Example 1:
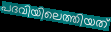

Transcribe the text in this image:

പദവിയിലെത്തിയത്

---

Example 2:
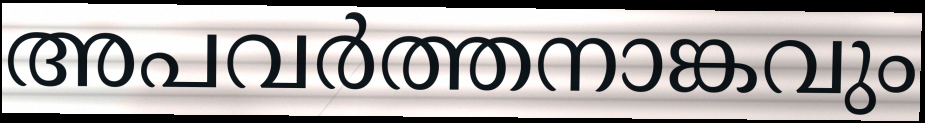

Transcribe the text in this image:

അപവർത്തനാങ്കവും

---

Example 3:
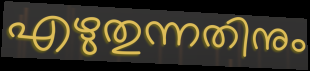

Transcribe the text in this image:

എഴുതുന്നതിനും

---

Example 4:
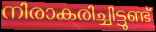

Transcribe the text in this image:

നിരാകരിച്ചിട്ടുണ്ട്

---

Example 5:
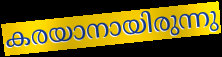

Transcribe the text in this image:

കരയാനായിരുന്നു